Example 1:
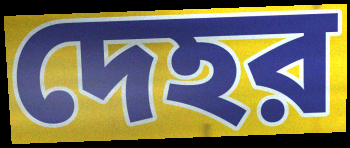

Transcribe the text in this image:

দেহর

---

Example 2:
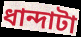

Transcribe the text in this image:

ধান্দাটা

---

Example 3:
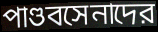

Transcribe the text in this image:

পাণ্ডবসেনাদের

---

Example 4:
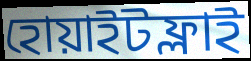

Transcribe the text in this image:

হোয়াইটফ্লাই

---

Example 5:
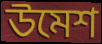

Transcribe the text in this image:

উমেশ